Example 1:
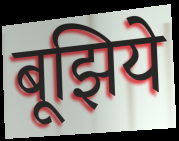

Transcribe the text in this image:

बूझिये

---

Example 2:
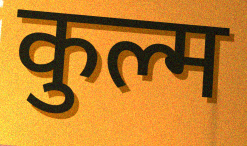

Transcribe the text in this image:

कुल्म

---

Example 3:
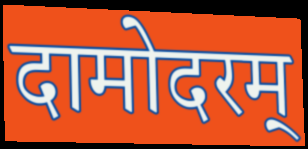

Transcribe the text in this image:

दामोदरम्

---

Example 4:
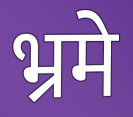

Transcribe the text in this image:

भ्रमे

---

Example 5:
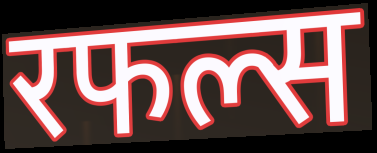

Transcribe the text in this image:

रफल्स